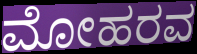
ಮೋಹರವ